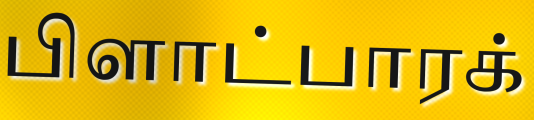
பிளாட்பாரக்